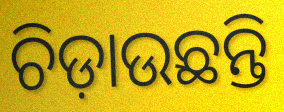
ଚିଡ଼ାଉଛନ୍ତି